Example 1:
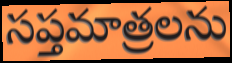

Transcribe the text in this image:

సప్తమాత్రలను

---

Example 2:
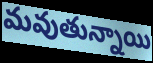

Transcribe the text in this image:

మవుతున్నాయి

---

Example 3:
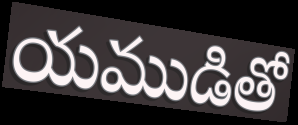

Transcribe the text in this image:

యముడితో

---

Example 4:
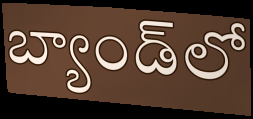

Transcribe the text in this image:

బ్యాండ్‌లో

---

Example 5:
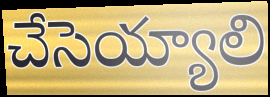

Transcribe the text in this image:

చేసెయ్యాలి